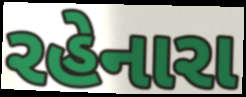
રહેનારા